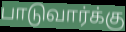
பாடுவார்க்கு